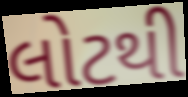
લોટથી